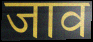
जाव